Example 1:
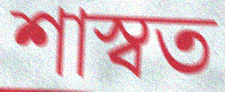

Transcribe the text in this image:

শাস্বত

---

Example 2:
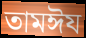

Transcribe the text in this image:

তামঈয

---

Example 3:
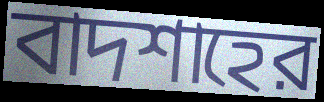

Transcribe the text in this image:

বাদশাহের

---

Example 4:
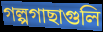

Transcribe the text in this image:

গল্পগাছাগুলি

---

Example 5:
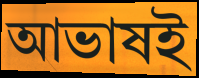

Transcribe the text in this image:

আভাষই